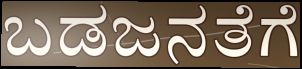
ಬಡಜನತೆಗೆ